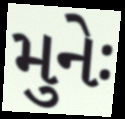
મુનેઃ